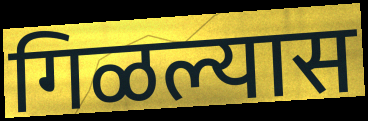
गिळल्यास